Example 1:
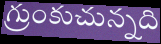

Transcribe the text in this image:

గ్రుంకుచున్నది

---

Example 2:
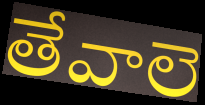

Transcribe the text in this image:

తేవాలె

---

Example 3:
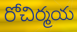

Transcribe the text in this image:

రోచిర్మయ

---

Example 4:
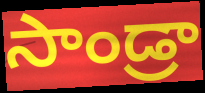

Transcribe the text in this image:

సాండ్రా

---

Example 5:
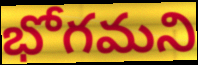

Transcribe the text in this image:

భోగమని